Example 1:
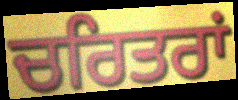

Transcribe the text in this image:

ਚਰਿਤਰਾਂ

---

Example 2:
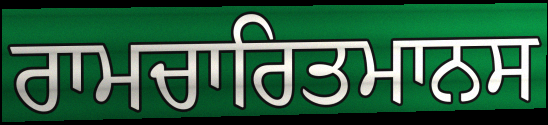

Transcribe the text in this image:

ਰਾਮਚਾਰਿਤਮਾਨਸ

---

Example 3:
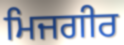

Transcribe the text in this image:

ਮਿਜਗੀਰ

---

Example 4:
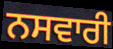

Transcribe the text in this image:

ਨਸਵਾਰੀ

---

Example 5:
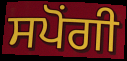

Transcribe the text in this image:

ਸਪੋਂਗੀ